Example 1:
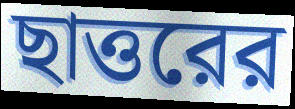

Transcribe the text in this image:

ছাত্তরের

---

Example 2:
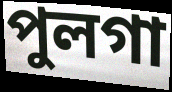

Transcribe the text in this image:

পুলগা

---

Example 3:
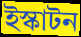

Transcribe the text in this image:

ইস্কাটন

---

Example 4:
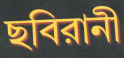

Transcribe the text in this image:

ছবিরানী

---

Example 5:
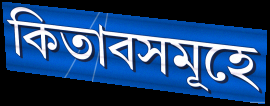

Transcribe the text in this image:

কিতাবসমূহে